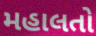
મહાલતો